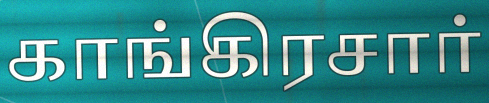
காங்கிரசார்